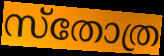
സ്തോത്ര